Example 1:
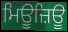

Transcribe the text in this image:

ਮਿਊਜ਼ਿਊ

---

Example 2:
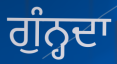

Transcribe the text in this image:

ਗੁੰਨ੍ਹਦਾ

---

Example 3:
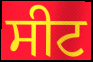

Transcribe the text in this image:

ਸੀਟ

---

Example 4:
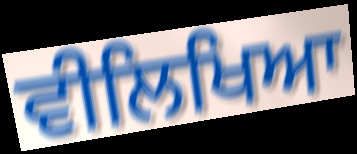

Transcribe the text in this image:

ਵੀਲਿਖਿਆ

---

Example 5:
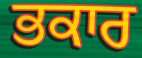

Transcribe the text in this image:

ਭਕਾਰ